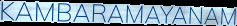
KAMBARAMAYANAM